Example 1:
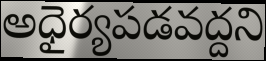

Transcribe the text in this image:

అధైర్యపడవద్దని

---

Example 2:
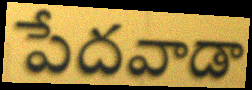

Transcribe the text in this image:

పేదవాడా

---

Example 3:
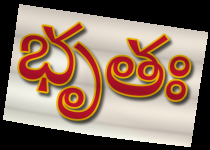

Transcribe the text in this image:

భృతః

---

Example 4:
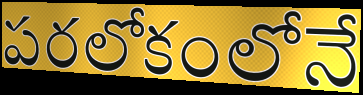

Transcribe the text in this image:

పరలోకంలోనే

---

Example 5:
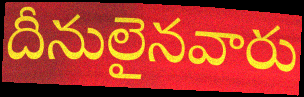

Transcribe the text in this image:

దీనులైనవారు